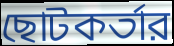
ছোটকর্তার